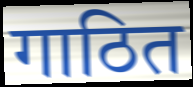
गाठित